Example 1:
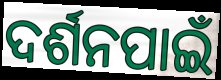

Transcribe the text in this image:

ଦର୍ଶନପାଇଁ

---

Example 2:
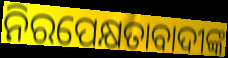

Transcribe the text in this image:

ନିରପେକ୍ଷତାବାଦୀଙ୍କ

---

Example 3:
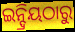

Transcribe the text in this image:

ଇନ୍ଦ୍ରିୟଠାରୁ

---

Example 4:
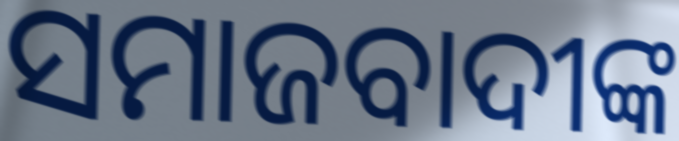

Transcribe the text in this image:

ସମାଜବାଦୀଙ୍କ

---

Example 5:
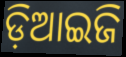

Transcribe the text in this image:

ଡ଼ିଆଇଜି